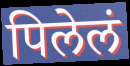
पिलेलं